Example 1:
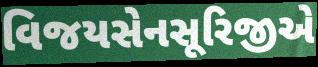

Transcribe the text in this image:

વિજયસેનસૂરિજીએ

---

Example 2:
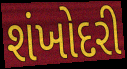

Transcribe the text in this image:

શંખોદરી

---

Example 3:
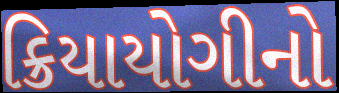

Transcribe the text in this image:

ક્રિયાયોગીનો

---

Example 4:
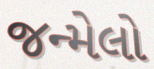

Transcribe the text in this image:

જન્મેલો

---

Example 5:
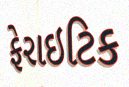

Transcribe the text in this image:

ફેરાઇટિક